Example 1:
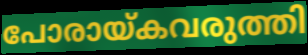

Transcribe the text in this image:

പോരായ്കവരുത്തി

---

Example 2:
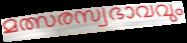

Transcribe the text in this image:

മത്സരസ്വഭാവവും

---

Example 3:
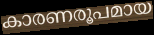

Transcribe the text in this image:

കാരണരൂപമായ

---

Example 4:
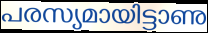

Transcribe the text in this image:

പരസ്യമായിട്ടാണു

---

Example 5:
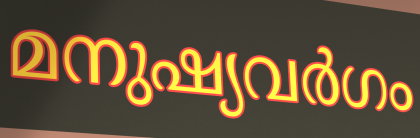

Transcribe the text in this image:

മനുഷ്യവർഗം